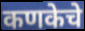
कणकेचे